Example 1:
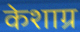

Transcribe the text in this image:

केशाग्र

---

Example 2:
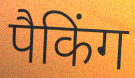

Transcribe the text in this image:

पैकिंग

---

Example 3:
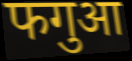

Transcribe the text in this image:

फगुआ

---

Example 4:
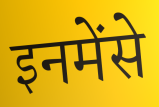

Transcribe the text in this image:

इनमेंसे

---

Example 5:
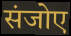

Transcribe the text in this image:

संजोए